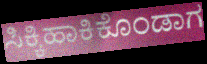
ಸಿಕ್ಕಿಹಾಕಿಕೊಂಡಾಗ